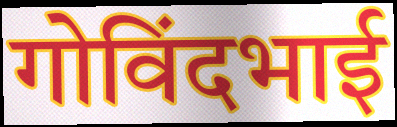
गोविंदभाई